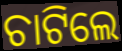
ଚାଟିଲେ